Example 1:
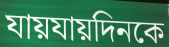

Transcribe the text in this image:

যায়যায়দিনকে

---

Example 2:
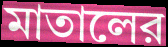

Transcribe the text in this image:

মাতালের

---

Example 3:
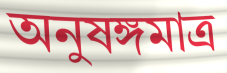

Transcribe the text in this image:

অনুষঙ্গমাত্র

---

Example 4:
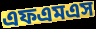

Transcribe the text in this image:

এফএমএস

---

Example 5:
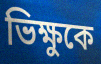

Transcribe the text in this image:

ভিক্ষুকে